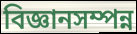
বিজ্ঞানসম্পন্ন